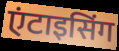
एंटाइसिंग